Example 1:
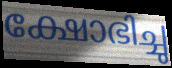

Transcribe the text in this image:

ക്ഷോഭിച്ചു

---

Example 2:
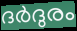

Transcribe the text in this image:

ദർദുരം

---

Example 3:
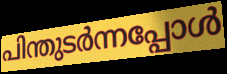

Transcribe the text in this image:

പിന്തുടർന്നപ്പോൾ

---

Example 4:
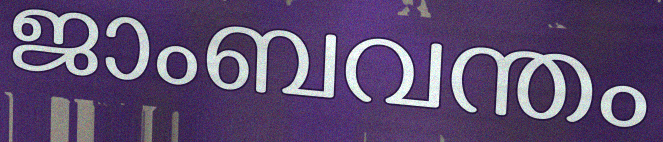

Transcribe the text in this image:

ജാംബവന്തം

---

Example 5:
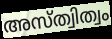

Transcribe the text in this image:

അസ്ത്വിത്വം